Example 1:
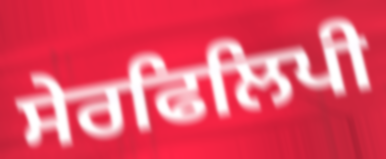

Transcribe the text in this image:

ਸੇਰਫਿਲਿਪੀ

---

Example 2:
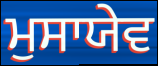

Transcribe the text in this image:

ਮੁਸਾਯੇਵ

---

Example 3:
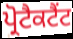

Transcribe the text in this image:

ਪ੍ਰੋਟੈਕਟੈਂਟ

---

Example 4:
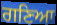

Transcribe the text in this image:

ਗਣਿਆ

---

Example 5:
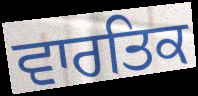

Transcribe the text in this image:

ਵਾਰਤਿਕ